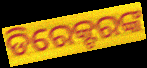
ଡିରେକ୍ଟରଙ୍କ